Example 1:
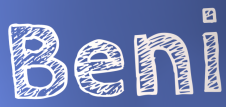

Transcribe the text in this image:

Beni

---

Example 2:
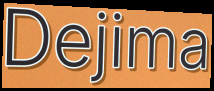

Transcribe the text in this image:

Dejima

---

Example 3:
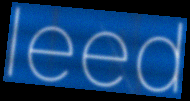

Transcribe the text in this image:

leed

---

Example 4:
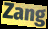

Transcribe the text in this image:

Zang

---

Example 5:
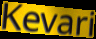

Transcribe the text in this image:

Kevari